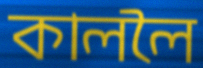
কাললৈ